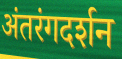
अंतरंगदर्शन